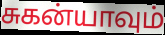
சுகன்யாவும்